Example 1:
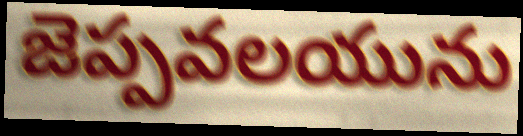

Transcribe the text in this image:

జెప్పవలయును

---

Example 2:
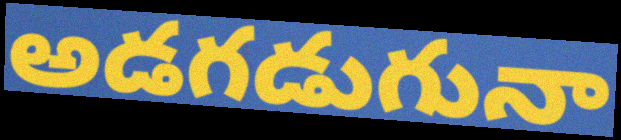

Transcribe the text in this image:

అడగడుగునా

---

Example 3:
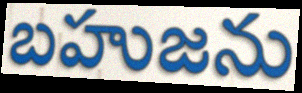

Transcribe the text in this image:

బహుజను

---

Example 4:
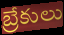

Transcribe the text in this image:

బ్రేకులు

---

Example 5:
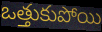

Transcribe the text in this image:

ఒత్తుకుపోయి